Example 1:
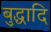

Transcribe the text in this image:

बुद्धादि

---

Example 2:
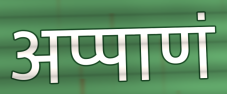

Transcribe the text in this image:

अप्पाणं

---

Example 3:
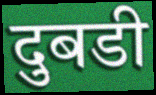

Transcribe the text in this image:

दुबडी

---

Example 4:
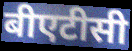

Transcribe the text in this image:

बीएटीसी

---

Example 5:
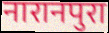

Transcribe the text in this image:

नारानपुरा